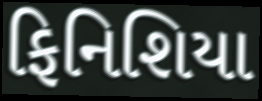
ફિનિશિયા